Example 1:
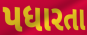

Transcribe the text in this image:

પધારતા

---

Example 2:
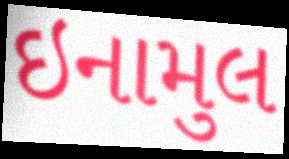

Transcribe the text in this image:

ઇનામુલ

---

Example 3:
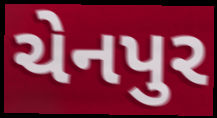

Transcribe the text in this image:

ચેનપુર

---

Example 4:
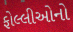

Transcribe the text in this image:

ફોલ્લીઓનો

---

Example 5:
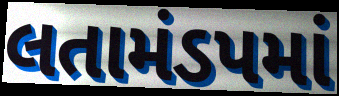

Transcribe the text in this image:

લતામંડપમાં